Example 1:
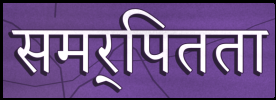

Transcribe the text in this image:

समर्पितता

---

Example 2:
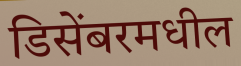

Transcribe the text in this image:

डिसेंबरमधील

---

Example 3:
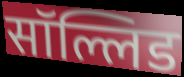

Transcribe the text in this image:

सॉल्लिड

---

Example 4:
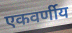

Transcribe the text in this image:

एकवर्णीय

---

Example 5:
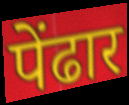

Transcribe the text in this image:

पेंढार